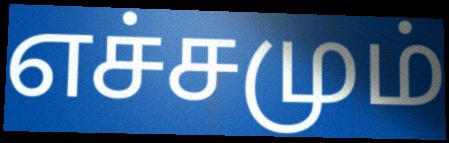
எச்சமும்